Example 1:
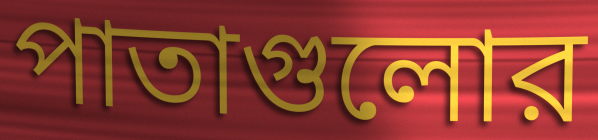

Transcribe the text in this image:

পাতাগুলোর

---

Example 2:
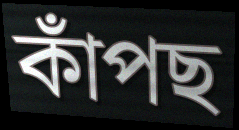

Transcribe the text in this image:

কাঁপছ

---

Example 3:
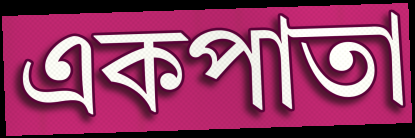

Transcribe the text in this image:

একপাতা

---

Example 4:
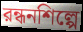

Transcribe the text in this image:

রন্ধনশিল্পে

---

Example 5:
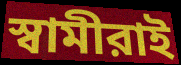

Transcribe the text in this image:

স্বামীরাই